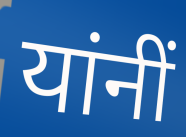
यांनीं